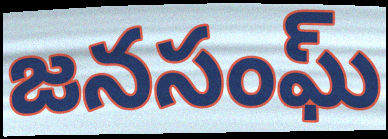
జనసంఘ్